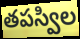
తపస్విల